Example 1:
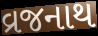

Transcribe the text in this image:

વ્રજનાથ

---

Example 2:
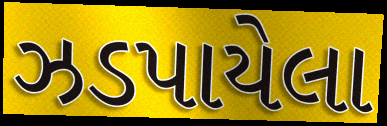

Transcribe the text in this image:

ઝડપાયેલા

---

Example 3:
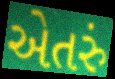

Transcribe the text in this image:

એતરું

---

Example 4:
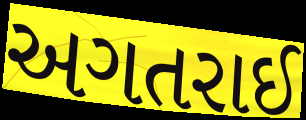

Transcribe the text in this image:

અગતરાઈ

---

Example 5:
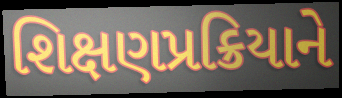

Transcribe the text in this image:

શિક્ષણપ્રક્રિયાને